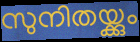
സുനിതയ്ക്കും